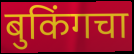
बुकिंगचा